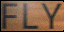
FLY